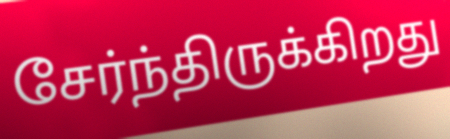
சேர்ந்திருக்கிறது